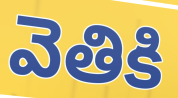
వెతికి